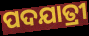
ପଦଯାତ୍ରୀ